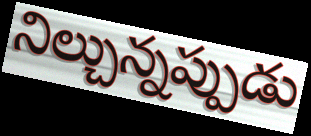
నిల్చున్నప్పుడు